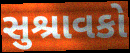
સુશ્રાવકો